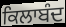
ਕਿਲਾਬੰਦ